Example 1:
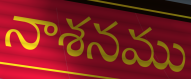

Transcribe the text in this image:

నాశనము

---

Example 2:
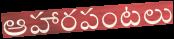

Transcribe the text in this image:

ఆహారపంటలు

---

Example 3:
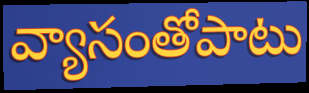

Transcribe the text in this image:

వ్యాసంతోపాటు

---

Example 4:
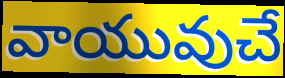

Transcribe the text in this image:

వాయువుచే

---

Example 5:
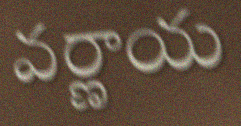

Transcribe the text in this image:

వర్ణాయ